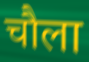
चौला